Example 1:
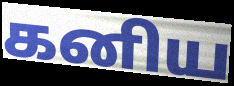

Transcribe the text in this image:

கனிய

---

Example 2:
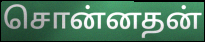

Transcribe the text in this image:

சொன்னதன்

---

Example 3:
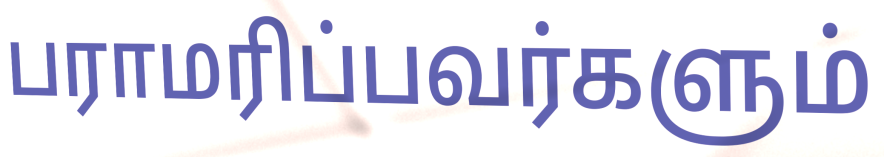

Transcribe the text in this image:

பராமரிப்பவர்களும்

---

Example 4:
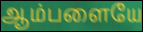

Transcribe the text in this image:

ஆம்பளையே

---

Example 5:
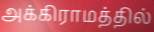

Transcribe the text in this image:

அக்கிராமத்தில்